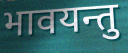
भावयन्तु